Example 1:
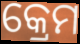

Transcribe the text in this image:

କ୍ରେମ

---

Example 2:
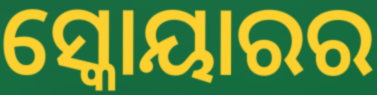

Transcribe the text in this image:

ସ୍କୋୟାରର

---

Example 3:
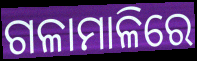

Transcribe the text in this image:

ଗଳାମାଳିରେ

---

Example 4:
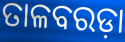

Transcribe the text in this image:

ତାଳବରଡ଼ା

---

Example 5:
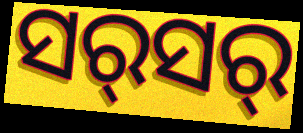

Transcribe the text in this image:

ସର୍‍ସର୍